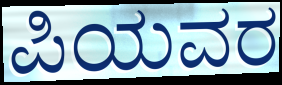
ಪಿಯವರ